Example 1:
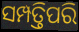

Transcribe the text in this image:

ସମ୍ପତ୍ତିପରି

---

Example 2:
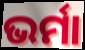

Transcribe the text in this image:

ଭର୍ମା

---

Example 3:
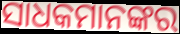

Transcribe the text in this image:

ସାଧକମାନଙ୍କର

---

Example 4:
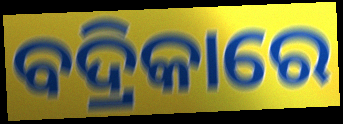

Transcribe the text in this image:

ବଦ୍ରିକାରେ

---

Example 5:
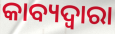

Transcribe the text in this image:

କାବ୍ୟଦ୍ୱାରା